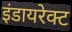
इंडायरेक्ट